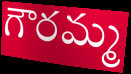
గౌరమ్మ